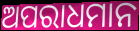
ଅପରାଧମାନ